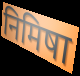
निमिषा